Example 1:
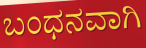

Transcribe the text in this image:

ಬಂಧನವಾಗಿ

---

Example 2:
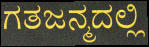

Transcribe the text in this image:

ಗತಜನ್ಮದಲ್ಲಿ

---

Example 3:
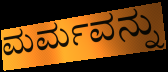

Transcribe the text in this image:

ಮರ್ಮವನ್ನು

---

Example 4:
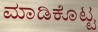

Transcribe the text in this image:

ಮಾಡಿಕೊಟ್ಟ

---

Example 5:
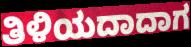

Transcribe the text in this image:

ತಿಳಿಯದಾದಾಗ